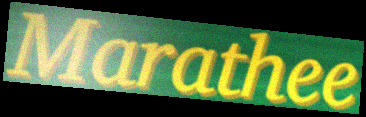
Marathee